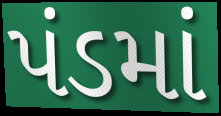
પંડમાં